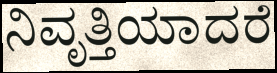
ನಿವೃತ್ತಿಯಾದರೆ